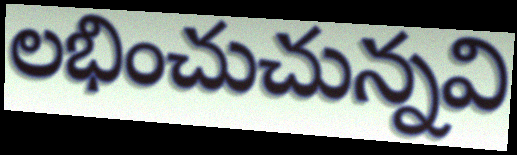
లభించుచున్నవి